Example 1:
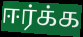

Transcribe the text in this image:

ஈர்க்க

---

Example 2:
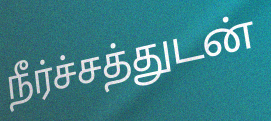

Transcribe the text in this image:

நீர்ச்சத்துடன்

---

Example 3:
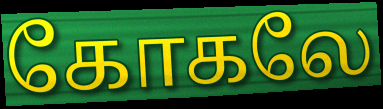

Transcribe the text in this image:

கோகலே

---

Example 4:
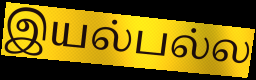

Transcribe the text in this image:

இயல்பல்ல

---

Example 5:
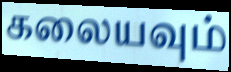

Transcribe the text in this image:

கலையவும்